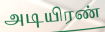
அடியிரண்